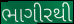
ભાગીરથી